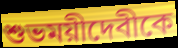
শুভময়ীদেবীকে